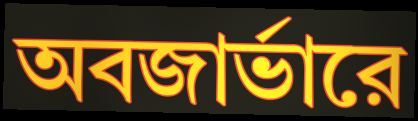
অবজার্ভারে